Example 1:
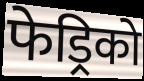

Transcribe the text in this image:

फेड्रिको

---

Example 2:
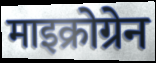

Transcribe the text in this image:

माइक्रोग्रेन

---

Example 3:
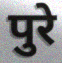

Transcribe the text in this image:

पुरे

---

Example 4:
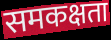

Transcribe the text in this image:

समकक्षता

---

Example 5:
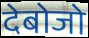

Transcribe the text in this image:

देबोजो